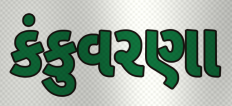
કંકુવરણા